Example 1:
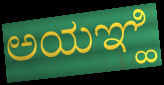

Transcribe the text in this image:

ಅಯಞ್ಹಿ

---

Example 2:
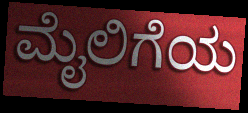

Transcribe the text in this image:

ಮೈಲಿಗೆಯ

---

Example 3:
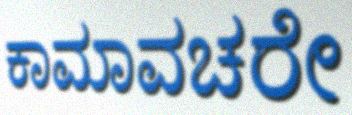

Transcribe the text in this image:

ಕಾಮಾವಚರೇ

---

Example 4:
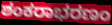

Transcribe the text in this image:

ಶಂಕರಾಭರಣಂ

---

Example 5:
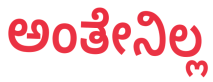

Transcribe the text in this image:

ಅಂತೇನಿಲ್ಲ